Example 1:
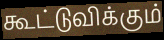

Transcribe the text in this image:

கூட்டுவிக்கும்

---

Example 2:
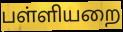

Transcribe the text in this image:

பள்ளியறை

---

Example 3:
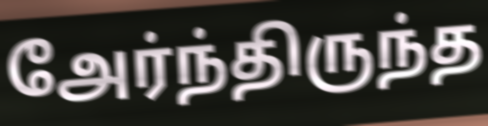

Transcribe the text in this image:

அேர்ந்திருந்த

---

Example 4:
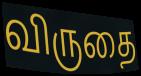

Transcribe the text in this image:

விருதை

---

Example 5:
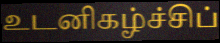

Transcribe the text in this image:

உடனிகழ்ச்சிப்